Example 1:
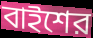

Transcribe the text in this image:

বাইশের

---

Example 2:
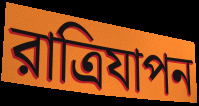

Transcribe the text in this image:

রাত্রিযাপন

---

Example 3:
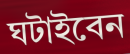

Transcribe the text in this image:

ঘটাইবেন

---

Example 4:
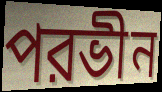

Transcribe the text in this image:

পরভীন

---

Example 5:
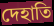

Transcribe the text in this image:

দেহাতি